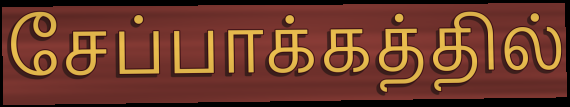
சேப்பாக்கத்தில்